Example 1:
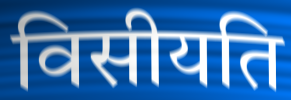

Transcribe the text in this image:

विसीयति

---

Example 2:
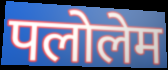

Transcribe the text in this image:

पलोलेम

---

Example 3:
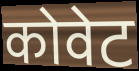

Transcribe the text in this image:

कोवेट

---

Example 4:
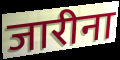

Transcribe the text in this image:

जारीना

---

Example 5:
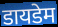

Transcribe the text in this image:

डायडेम